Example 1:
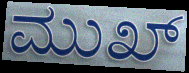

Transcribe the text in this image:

ಮುಖ್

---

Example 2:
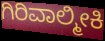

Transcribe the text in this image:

ಗಿರಿವಾಲ್ಮೀಕಿ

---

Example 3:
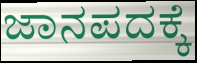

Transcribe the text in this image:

ಜಾನಪದಕ್ಕೆ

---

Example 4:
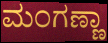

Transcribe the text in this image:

ಮಂಗಣ್ಣಾ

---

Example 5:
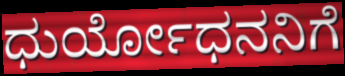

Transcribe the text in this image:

ಧುರ್ಯೋಧನನಿಗೆ